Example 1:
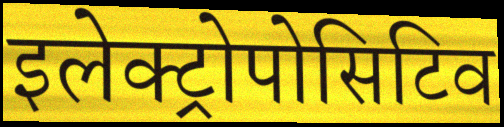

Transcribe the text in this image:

इलेक्ट्रोपोसिटिव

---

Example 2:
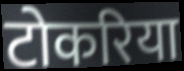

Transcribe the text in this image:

टोकरिया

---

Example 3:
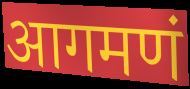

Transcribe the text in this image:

आगमणं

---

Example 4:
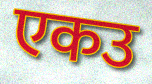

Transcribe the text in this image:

एकउ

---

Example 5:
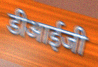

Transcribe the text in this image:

डीआईजी